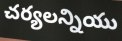
చర్యలన్నియు